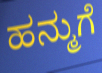
ಹನ್ಮುಗೆ